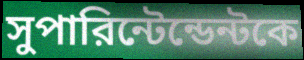
সুপারিন্টেন্ডেন্টকে